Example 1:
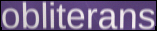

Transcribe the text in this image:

obliterans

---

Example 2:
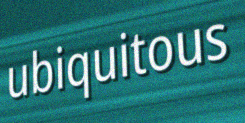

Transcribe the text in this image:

ubiquitous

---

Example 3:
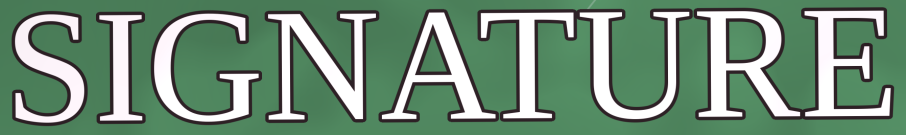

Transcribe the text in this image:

SIGNATURE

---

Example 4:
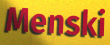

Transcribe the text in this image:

Menski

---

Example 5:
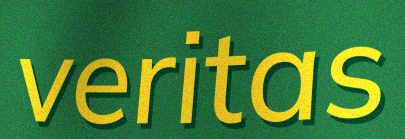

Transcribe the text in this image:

veritas